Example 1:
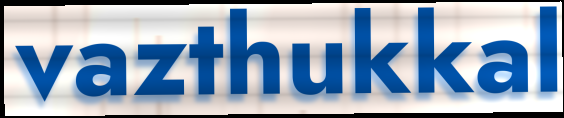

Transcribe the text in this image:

vazthukkal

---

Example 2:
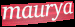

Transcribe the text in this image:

maurya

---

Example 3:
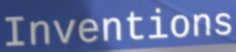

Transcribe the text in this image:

Inventions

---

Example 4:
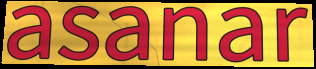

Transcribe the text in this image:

asanar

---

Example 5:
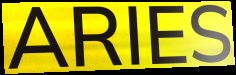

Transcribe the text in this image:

ARIES